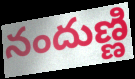
నందుణ్ణి